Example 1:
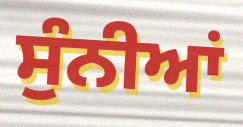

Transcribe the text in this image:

ਸੁੰਨੀਆਂ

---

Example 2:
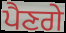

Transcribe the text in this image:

ਪੈਣਗੇ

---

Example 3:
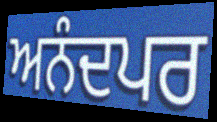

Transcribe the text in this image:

ਅਨੰਦਪਰ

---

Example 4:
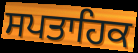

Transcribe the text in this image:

ਸਪਤਾਹਿਕ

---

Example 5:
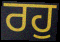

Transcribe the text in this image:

ਰਹੁ